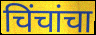
चिंचांचा